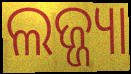
ଲଜ୍ଜ୍ୟା